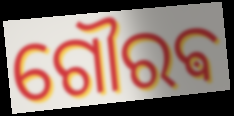
ଗୌରଵ